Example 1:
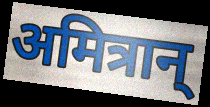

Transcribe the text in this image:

अमित्रान्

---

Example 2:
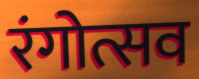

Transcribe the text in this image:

रंगोत्सव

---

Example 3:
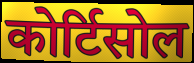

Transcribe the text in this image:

कोर्टिसोल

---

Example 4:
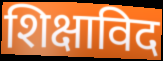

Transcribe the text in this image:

शिक्षाविद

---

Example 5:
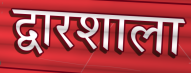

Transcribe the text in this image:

द्वारशाला